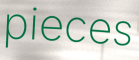
pieces